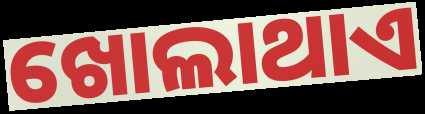
ଖୋଲାଥାଏ